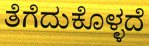
ತೆಗೆದುಕೊಳ್ಳದೆ